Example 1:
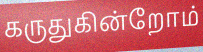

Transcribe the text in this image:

கருதுகின்றோம்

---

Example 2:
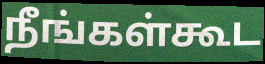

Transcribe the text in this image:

நீங்கள்கூட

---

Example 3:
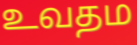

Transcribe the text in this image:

உவதம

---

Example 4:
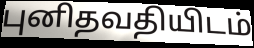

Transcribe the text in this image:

புனிதவதியிடம்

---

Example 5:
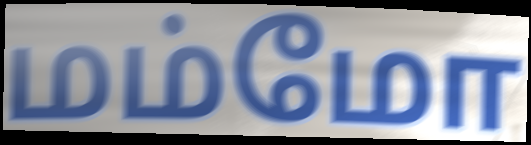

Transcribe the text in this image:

மம்மோ